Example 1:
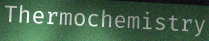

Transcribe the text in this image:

Thermochemistry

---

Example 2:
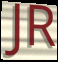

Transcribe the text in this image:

JR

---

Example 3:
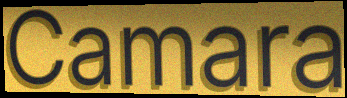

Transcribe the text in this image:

Camara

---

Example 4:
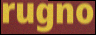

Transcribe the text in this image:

rugno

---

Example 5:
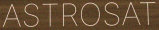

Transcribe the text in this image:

ASTROSAT